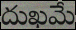
దుఖమే